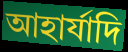
আহার্যাদি